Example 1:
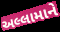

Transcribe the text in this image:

અલ્લામાને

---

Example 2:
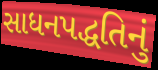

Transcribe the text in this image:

સાધનપદ્ધતિનું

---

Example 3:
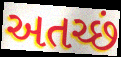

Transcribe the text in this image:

અતચ્છં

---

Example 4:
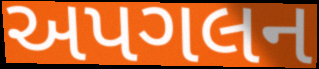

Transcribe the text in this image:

અપગલન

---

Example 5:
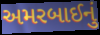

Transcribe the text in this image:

અમરબાઈનું